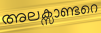
അലക്സാണ്ടറെ